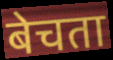
बेचता